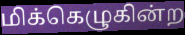
மிக்கெழுகின்ற